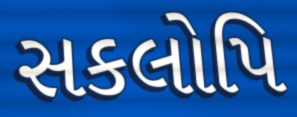
સકલોપિ